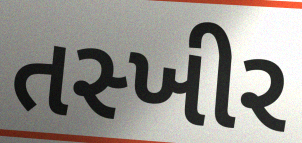
તસ્ખીર